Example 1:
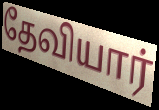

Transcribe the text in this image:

தேவியார்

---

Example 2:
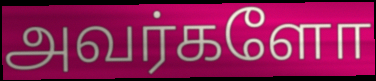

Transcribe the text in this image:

அவர்களோ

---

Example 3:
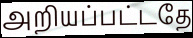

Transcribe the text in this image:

அறியப்பட்டதே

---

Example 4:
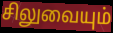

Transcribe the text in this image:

சிலுவையும்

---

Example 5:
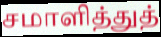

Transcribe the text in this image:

சமாளித்துத்